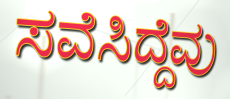
ಸವೆಸಿದ್ದೆವು